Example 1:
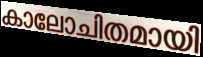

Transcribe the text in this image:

കാലോചിതമായി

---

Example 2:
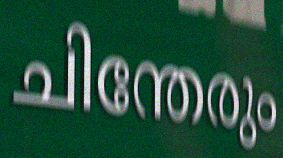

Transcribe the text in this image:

ചിന്തേരും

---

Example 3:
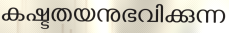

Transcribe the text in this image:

കഷ്ടതയനുഭവിക്കുന്ന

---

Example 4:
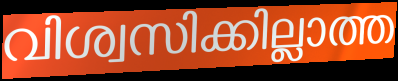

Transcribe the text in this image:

വിശ്വസിക്കില്ലാത്ത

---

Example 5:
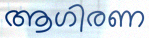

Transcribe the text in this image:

ആഗിരണ